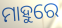
ମାହୁରେ